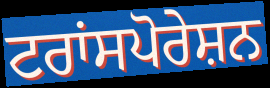
ਟਰਾਂਸਪੋਰੇਸ਼ਨ